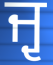
ਜ੍ਦ